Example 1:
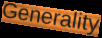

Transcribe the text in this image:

Generality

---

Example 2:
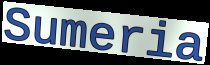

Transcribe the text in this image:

Sumeria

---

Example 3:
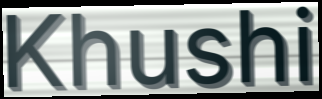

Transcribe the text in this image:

Khushi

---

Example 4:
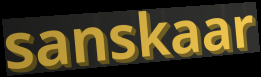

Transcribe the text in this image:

sanskaar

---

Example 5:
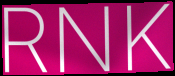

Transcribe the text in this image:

RNK